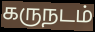
கருநடம்